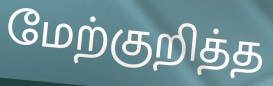
மேற்குறித்த